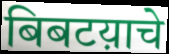
बिबटय़ाचे